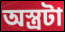
অস্ত্রটা